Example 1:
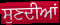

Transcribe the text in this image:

ਸੁਣਦੀਆਂ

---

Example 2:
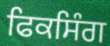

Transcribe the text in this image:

ਫਿਕਸਿੰਗ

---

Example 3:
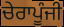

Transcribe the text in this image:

ਚੇਰਾਪੂੰਜੀ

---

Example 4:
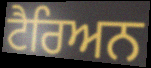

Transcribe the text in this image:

ਟੈਰਿਅਨ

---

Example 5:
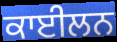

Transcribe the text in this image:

ਕਾਈਲਨ